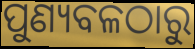
ପୁଣ୍ୟବଳଠାରୁ